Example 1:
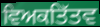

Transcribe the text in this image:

ਵਿਅਕਤਿੱਤਵ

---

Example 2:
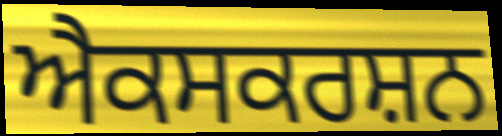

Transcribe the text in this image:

ਐਕਸਕਰਸ਼ਨ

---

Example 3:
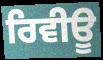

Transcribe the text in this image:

ਰਿਵੀਊ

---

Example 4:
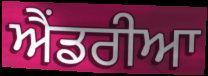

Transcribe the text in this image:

ਐਂਡਰੀਆ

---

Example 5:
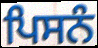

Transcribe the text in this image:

ਪਿਸਨੰ